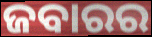
ଜବାରର